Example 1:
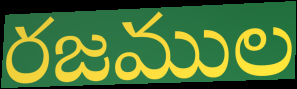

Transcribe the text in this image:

రజముల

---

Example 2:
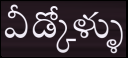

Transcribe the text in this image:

వీడ్కోళ్ళు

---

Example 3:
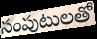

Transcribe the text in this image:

సంపుటులతో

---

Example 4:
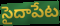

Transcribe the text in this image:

సైదాపేట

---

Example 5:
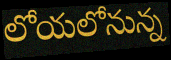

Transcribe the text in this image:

లోయలోనున్న